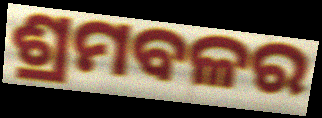
ଶ୍ରମବଳର